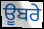
ਊਬਰੇ